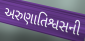
અરુણાતિશ્વસની